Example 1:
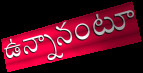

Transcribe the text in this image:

ఉన్నానంటూ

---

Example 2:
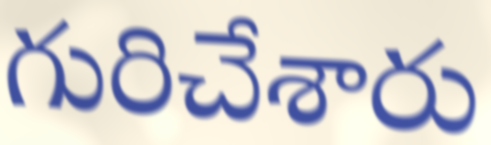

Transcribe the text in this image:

గురిచేశారు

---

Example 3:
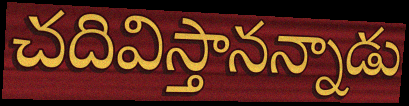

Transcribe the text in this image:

చదివిస్తానన్నాడు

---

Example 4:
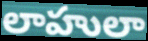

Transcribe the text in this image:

లాహులా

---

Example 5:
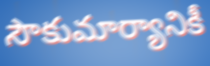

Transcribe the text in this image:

సౌకుమార్యానికీ